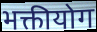
भक्तीयोग